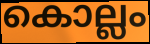
കൊല്ലം